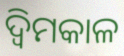
ଦ୍ବିମକାଳ